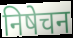
निषेचन